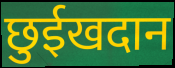
छुईखदान